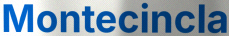
Montecincla